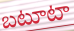
బటూటా